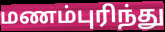
மணம்புரிந்து